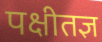
पक्षीतज्ञ